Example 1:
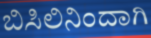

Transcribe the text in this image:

ಬಿಸಿಲಿನಿಂದಾಗಿ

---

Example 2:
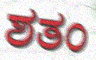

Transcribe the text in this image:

ಶತಂ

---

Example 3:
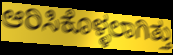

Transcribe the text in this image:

ಆರಿಸಿಕೊಳ್ಳಲಾಗಿತ್ತು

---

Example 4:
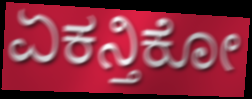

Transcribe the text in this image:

ಏಕನ್ತಿಕೋ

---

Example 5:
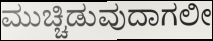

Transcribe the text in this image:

ಮುಚ್ಚಿಡುವುದಾಗಲೀ